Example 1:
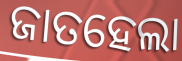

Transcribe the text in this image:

ଜାତହେଲା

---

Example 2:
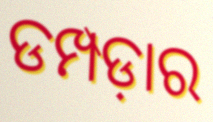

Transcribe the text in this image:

ଡମ୍ପଡ଼ାର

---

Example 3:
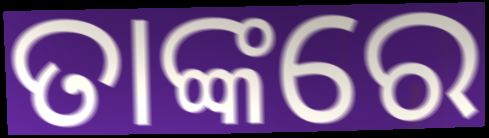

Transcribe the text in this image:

ତାଙ୍କରେ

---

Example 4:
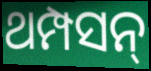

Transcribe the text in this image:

ଥମ୍ପସନ୍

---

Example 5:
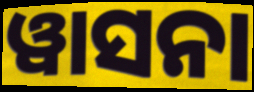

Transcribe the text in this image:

ୱାସନା